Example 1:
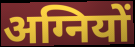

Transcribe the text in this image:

अग्नियों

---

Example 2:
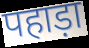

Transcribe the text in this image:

पहाड़ा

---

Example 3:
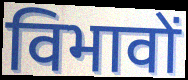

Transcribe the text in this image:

विभावों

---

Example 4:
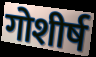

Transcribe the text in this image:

गोशीर्ष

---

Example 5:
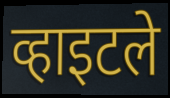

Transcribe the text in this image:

व्हाइटले